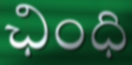
ఛింధి